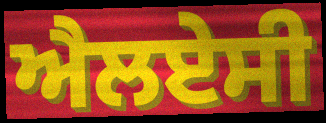
ਐਲਏਸੀ